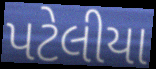
પટેલીયા